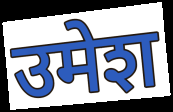
उमेश